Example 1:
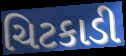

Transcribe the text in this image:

ચિટકાડી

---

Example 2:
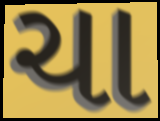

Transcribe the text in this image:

ચા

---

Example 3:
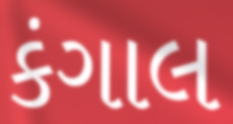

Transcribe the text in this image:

કંગાલ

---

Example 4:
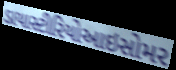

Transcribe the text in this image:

ડાયાસ્ટીરિયોઆઇસોમર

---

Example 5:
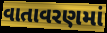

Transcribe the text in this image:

વાતાવરણમાં